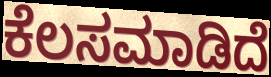
ಕೆಲಸಮಾಡಿದೆ